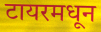
टायरमधून